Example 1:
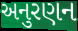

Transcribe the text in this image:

અનુરણન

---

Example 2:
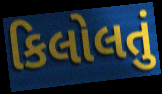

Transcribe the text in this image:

કિલોલતું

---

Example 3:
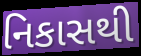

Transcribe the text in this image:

નિકાસથી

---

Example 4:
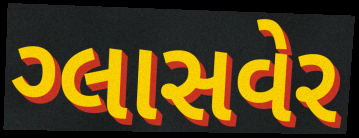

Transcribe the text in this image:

ગ્લાસવેર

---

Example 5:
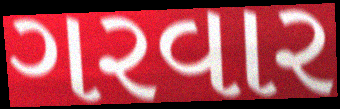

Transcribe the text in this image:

ગરવાર